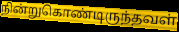
நின்றுகொண்டிருந்தவள்